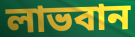
লাভবান